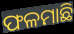
ଫଳମାଛି